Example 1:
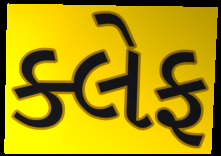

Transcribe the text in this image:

ક્લેફ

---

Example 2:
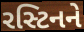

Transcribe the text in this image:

રસ્ટિનને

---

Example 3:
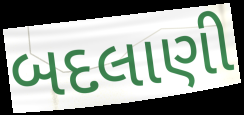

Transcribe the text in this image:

બદલાણી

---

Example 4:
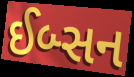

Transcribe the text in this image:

ઈબ્સન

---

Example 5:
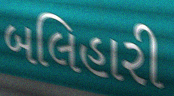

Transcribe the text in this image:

બલિહારી